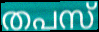
തപസ്